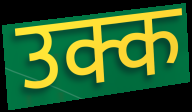
उक्क